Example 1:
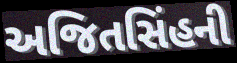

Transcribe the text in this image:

અજિતસિંહની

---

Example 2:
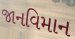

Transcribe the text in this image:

જાનવિમાન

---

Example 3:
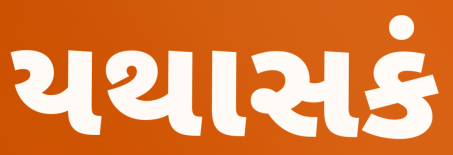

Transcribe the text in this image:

યથાસકં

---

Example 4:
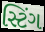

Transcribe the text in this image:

સ્ટિંગ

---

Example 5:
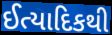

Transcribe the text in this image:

ઈત્યાદિકથી